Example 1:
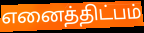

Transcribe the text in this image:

எனைத்திட்பம்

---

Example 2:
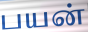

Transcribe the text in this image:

பயன்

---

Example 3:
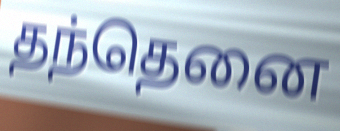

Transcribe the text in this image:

தந்தெனை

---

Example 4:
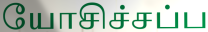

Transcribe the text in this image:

யோசிச்சப்ப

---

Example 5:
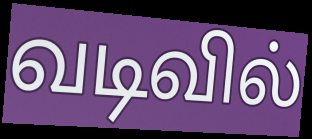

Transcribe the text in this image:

வடிவில்